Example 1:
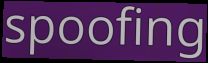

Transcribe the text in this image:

spoofing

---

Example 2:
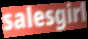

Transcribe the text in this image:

salesgirl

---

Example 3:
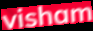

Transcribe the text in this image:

visham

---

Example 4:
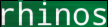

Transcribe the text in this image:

rhinos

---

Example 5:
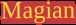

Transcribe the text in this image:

Magian